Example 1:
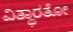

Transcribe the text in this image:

ವಿತ್ಥಾರತೋ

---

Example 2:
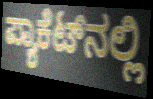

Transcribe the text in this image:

ಪ್ಯಾಕೆಟ್‌ನಲ್ಲಿ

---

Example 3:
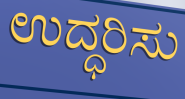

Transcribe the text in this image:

ಉದ್ಧರಿಸು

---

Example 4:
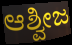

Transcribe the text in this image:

ಆಶ್ವೀಜ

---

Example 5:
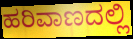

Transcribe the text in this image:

ಹರಿವಾಣದಲ್ಲಿ